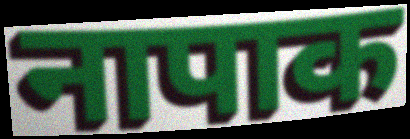
नापाक